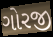
ગોરજી